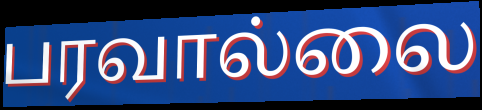
பரவால்லை